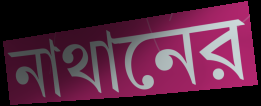
নাথানের